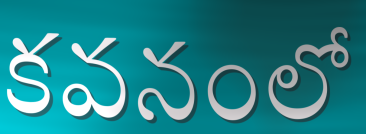
కవనంలో